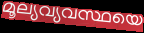
മൂല്യവ്യവസ്ഥയെ